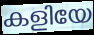
കളിയേ